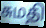
சுமதி